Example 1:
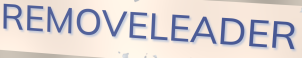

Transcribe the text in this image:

REMOVELEADER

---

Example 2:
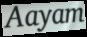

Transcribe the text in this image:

Aayam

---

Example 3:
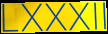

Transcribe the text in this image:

LXXXII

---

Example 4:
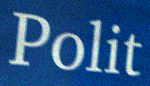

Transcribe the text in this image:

Polit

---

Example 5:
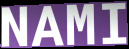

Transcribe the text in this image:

NAMI